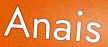
Anais